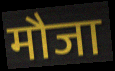
मौजा